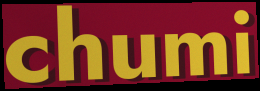
chumi